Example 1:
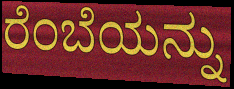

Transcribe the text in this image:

ರೆಂಬೆಯನ್ನು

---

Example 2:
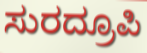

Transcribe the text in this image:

ಸುರದ್ರೂಪಿ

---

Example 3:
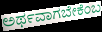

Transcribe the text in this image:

ಅರ್ಥವಾಗಬೇಕೆಂಬ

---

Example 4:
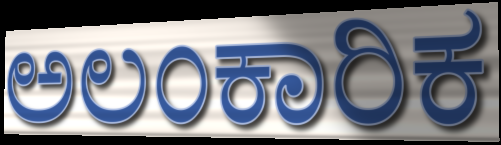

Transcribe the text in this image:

ಅಲಂಕಾರಿಕ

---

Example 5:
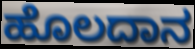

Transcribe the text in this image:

ಹೊಲದಾನ